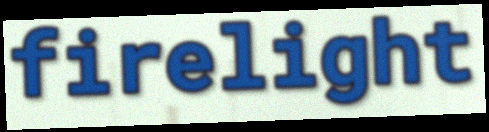
firelight